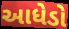
આધેડો